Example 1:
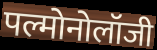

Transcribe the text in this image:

पल्मोनोलॉजी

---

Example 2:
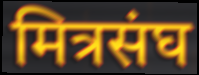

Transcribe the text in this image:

मित्रसंघ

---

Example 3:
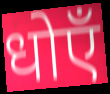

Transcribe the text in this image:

धोएँ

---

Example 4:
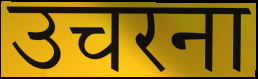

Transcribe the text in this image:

उचरना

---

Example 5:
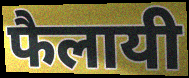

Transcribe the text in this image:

फैलायी